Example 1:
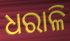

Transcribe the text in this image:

ଧରାଳି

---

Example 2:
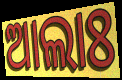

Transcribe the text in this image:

ଆଲାଃ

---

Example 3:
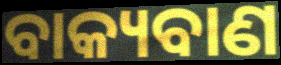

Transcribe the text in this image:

ବାକ୍ୟବାଣ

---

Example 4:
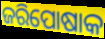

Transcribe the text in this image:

ଜରିପୋଷାକ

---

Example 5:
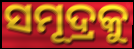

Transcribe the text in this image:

ସମୂଦ୍ରକୁ